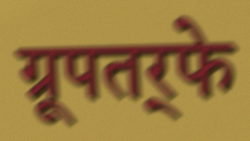
ग्रूपतर्फे